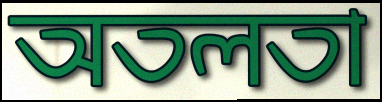
অতলতা